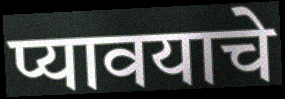
प्यावयाचे